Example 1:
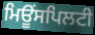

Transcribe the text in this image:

ਮਿਊਂਸਪਿਲਟੀ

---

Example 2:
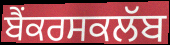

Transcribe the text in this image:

ਬੈਂਕਰਸਕਲੱਬ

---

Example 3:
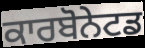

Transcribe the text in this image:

ਕਾਰਬੋਨੇਟਡ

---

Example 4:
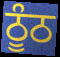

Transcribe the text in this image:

ਠੂੰਠ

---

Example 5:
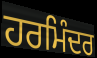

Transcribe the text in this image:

ਹਰਮਿੰਦਰ